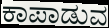
ಕಾಪಾಡುವ